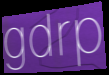
gdrp